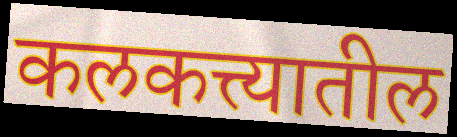
कलकत्त्यातील